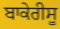
ਬਾਕੇਰੀਸੂ